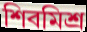
শিবমিশ্র